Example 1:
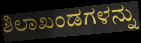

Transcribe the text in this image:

ಶಿಲಾಖಂಡಗಳನ್ನು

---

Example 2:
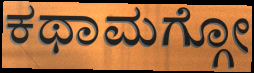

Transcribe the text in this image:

ಕಥಾಮಗ್ಗೋ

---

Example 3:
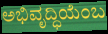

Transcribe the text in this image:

ಅಭಿವೃದ್ಧಿಯೆಂಬ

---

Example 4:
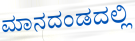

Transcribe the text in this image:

ಮಾನದಂಡದಲ್ಲಿ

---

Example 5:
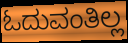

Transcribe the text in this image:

ಓದುವಂತಿಲ್ಲ